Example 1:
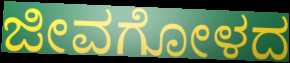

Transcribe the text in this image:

ಜೀವಗೋಳದ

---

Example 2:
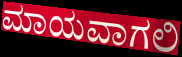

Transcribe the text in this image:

ಮಾಯವಾಗಲಿ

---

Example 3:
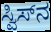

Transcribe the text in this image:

ಸ್ವಿಸ್‌ನ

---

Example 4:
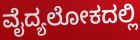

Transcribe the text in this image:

ವೈದ್ಯಲೋಕದಲ್ಲಿ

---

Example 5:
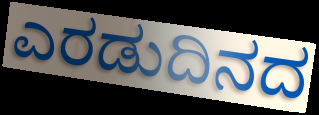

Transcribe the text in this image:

ಎರಡುದಿನದ